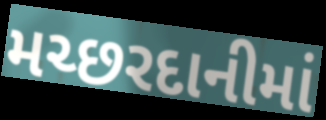
મચ્છરદાનીમાં